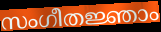
സംഗീതജ്ഞാം